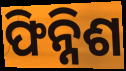
ଫିନ୍ନିଶ